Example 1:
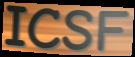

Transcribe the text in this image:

ICSF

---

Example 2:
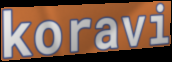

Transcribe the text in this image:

koravi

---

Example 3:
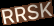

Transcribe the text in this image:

RRSK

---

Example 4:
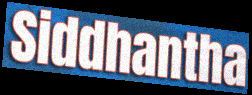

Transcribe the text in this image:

Siddhantha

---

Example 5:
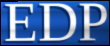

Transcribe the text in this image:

EDP